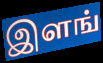
இளங்